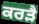
ਕਰੜੈ